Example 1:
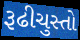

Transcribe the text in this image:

રૂઢીચુસ્તો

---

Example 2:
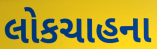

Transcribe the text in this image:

લોકચાહના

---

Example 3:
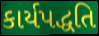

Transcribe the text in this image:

કાર્યપદ્ધતિ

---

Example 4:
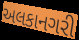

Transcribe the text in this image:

અલકાનગરી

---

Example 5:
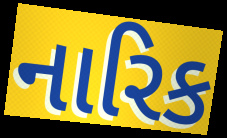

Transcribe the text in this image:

નારિક